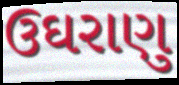
ઉઘરાણુ